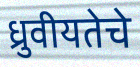
ध्रुवीयतेचे